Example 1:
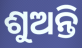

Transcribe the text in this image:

ଶୁଅନ୍ତି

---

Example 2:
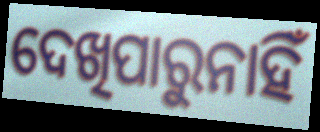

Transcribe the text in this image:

ଦେଖିପାରୁନାହିଁ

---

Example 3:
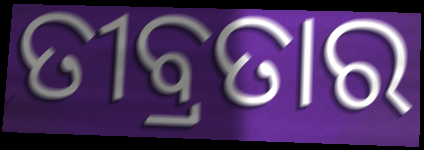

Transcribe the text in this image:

ତୀବ୍ରତାର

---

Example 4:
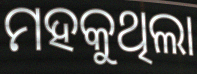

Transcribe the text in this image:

ମହକୁଥିଲା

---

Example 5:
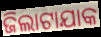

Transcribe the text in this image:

ଜିଲାଟାଯାକ